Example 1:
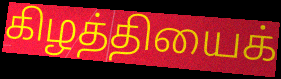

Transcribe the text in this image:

கிழத்தியைக்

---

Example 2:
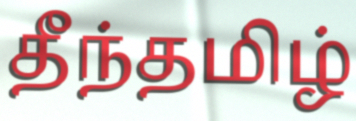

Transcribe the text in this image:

தீந்தமிழ்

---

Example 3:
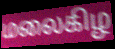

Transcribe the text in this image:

மலைகிழ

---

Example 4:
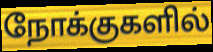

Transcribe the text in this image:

நோக்குகளில்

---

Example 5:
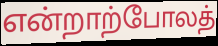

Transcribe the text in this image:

என்றாற்போலத்